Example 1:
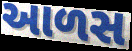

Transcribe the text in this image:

આળસ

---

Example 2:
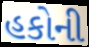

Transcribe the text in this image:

હકોની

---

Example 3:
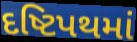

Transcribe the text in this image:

દષ્ટિપથમાં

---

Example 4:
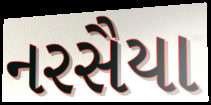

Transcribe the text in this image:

નરસૈયા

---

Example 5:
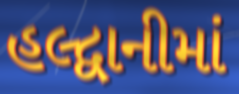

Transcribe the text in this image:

હલ્દ્વાનીમાં